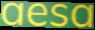
aesa